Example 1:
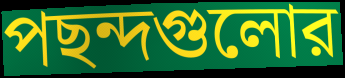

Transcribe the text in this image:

পছন্দগুলোর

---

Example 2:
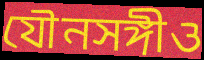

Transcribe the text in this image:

যৌনসঙ্গীও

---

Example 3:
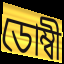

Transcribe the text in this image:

ডোম্বী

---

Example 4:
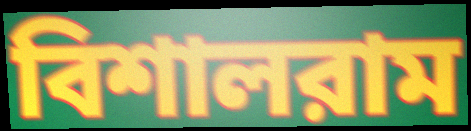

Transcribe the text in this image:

বিশালরাম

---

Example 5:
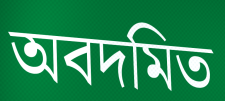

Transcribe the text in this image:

অবদমিত